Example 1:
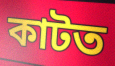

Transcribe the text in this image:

কাটত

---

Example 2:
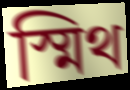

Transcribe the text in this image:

স্মিথ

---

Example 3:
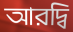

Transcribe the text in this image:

আরদ্বি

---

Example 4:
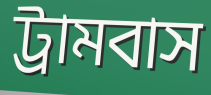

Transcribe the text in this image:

ট্রামবাস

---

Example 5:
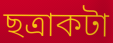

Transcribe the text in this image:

ছত্রাকটা